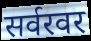
सर्वरवर